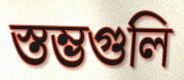
স্তম্ভগুলি